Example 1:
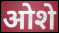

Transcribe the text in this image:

ओशे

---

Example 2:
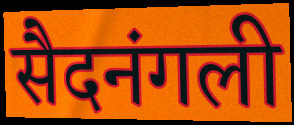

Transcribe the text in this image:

सैदनंगली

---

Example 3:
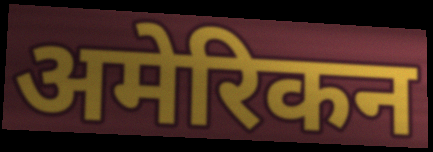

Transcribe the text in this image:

अमेरिकन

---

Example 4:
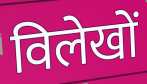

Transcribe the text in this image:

विलेखों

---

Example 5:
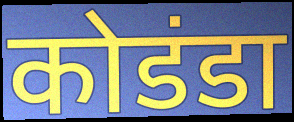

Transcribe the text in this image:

कोडंडा